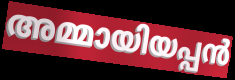
അമ്മായിയപ്പൻ